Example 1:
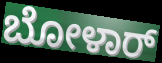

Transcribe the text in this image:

ಬೋಳಾರ್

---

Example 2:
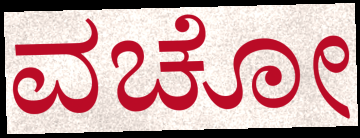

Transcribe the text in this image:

ವಚೋ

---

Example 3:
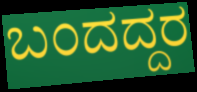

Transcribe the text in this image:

ಬಂದದ್ದರ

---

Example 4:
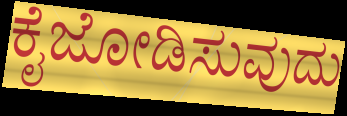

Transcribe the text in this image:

ಕೈಜೋಡಿಸುವುದು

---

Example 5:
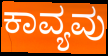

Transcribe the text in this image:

ಕಾವ್ಯವು